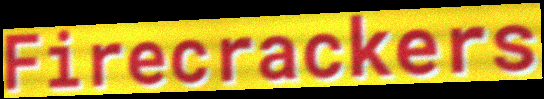
Firecrackers